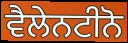
ਵੈਲੇਨਟੀਨੋ